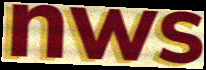
nws